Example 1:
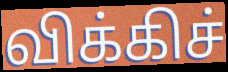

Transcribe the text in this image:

விக்கிச்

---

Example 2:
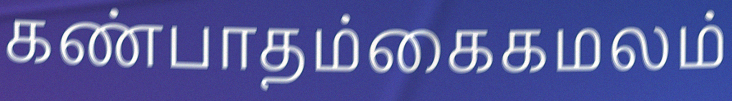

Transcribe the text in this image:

கண்பாதம்கைகமலம்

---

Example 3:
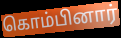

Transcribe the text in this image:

கொம்பினார்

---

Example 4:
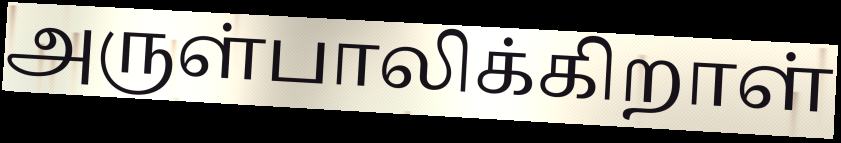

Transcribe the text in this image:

அருள்பாலிக்கிறாள்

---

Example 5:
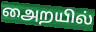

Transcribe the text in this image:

அைறயில்